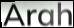
Arah